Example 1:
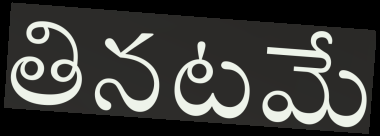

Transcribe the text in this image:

తినటమే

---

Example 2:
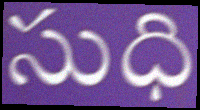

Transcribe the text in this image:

సుధి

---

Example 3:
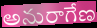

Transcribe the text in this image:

అనురాగేణ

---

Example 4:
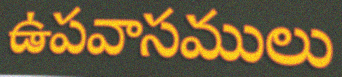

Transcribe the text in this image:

ఉపవాసములు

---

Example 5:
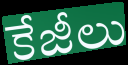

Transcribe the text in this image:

కేజీలు